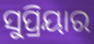
ସୁପ୍ରିୟାର